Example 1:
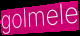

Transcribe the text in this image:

golmele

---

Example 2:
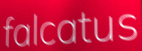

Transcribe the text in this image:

falcatus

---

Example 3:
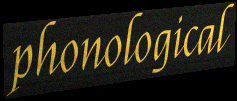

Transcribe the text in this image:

phonological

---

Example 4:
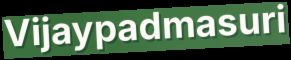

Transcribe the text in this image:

Vijaypadmasuri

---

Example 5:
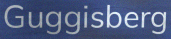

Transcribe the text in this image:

Guggisberg